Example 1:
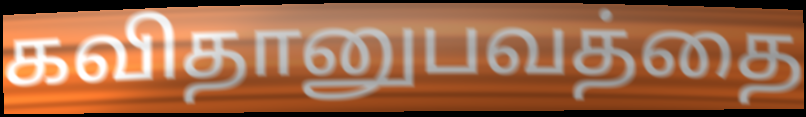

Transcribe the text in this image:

கவிதானுபவத்தை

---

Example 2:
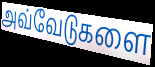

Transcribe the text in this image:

அவ்வேடுகளை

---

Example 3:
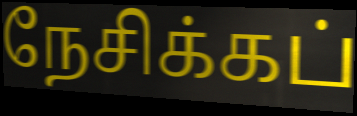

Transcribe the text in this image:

நேசிக்கப்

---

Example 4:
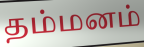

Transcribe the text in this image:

தம்மனம்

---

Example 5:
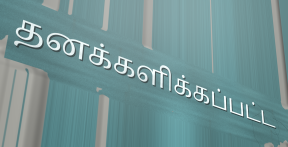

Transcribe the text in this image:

தனக்களிக்கப்பட்ட